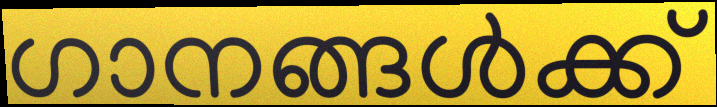
ഗാനങ്ങൾക്ക്